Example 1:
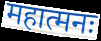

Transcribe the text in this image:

महात्मनः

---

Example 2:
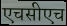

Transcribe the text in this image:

एचसीएच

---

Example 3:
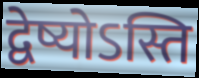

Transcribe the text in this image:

द्वेष्योऽस्ति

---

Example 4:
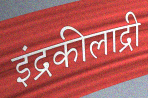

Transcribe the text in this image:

इंद्रकीलाद्री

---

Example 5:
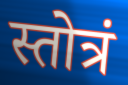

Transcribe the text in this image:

स्तोत्रं